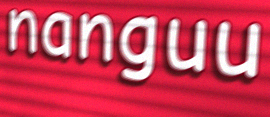
nanguu